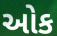
ઓક